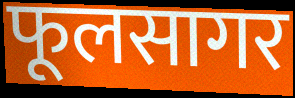
फूलसागर